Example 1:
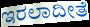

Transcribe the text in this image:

ಇರಲಾದೀತೆ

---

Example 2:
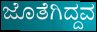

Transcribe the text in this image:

ಜೊತೆಗಿದ್ದವ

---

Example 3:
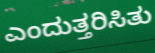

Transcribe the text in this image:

ಎಂದುತ್ತರಿಸಿತು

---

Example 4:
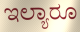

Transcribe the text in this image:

ಇಲ್ಯಾರೂ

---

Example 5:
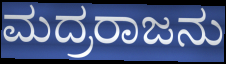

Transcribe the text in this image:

ಮದ್ರರಾಜನು